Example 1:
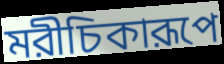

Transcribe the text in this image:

মরীচিকারূপে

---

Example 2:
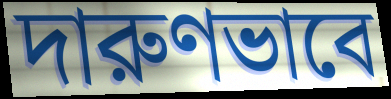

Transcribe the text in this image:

দারুণভাবে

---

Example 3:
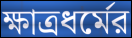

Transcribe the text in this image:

ক্ষাত্রধর্মের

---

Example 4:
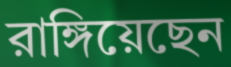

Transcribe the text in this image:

রাঙ্গিয়েছেন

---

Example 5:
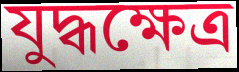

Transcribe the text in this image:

যুদ্ধক্ষেত্র